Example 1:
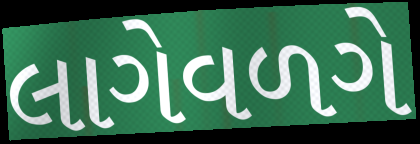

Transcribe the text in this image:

લાગેવળગે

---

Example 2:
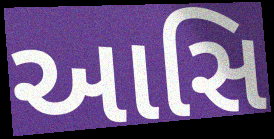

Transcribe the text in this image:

આસિ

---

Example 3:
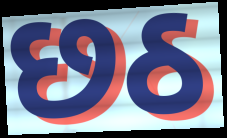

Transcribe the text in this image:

છઠ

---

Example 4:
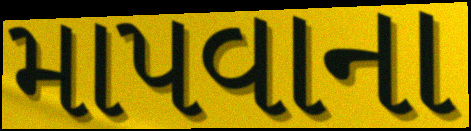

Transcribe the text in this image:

માપવાના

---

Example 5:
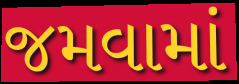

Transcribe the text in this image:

જમવામાં